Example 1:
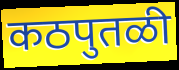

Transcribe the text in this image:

कठपुतळी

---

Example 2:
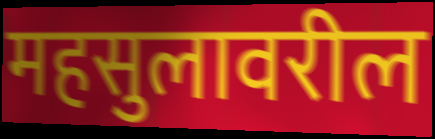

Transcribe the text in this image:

महसुलावरील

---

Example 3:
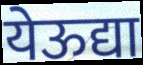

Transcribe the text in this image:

येऊद्या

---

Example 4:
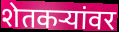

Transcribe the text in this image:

शेतकऱ्यांवर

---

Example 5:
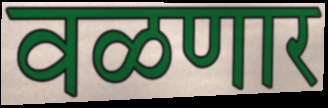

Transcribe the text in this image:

वळणार